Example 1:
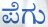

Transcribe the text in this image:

ಪೆಗು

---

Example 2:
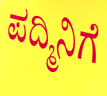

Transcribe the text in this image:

ಪದ್ಮಿನಿಗೆ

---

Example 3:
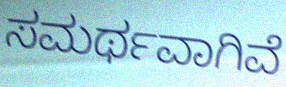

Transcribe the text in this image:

ಸಮರ್ಥವಾಗಿವೆ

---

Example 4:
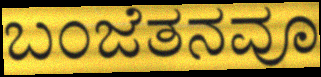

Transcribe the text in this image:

ಬಂಜೆತನವೂ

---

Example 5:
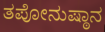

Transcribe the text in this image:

ತಪೋನುಷ್ಠಾನ